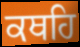
ਕਥਹਿ